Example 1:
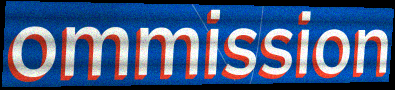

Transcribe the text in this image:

ommission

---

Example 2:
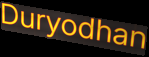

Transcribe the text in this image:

Duryodhan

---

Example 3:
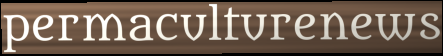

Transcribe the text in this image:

permaculturenews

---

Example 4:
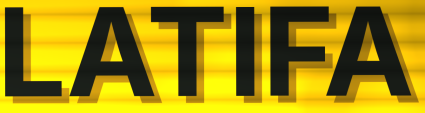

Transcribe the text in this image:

LATIFA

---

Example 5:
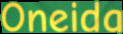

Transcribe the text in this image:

Oneida